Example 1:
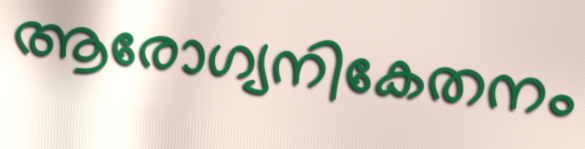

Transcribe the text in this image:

ആരോഗ്യനികേതനം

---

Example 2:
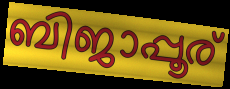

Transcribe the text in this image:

ബിജാപ്പൂര്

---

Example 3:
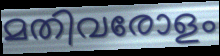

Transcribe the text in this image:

മതിവരോളം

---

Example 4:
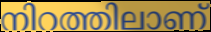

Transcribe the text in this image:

നിറത്തിലാണ്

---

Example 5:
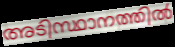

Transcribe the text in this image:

അടിസ്ഥാനത്തിൽ